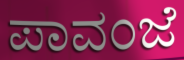
ಪಾವಂಜೆ